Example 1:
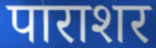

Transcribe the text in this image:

पाराशर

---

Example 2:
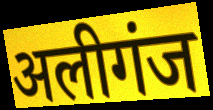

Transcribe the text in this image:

अलीगंज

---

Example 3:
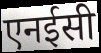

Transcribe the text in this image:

एनईसी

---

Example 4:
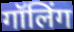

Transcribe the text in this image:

गॉलिंग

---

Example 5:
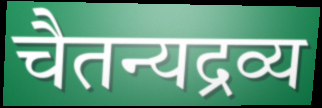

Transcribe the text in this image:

चैतन्यद्रव्य